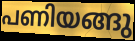
പണിയങ്ങു